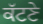
ਕੱਟਣੇ